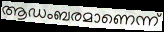
ആഡംബരമാണെന്ന്